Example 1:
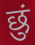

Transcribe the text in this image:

छुं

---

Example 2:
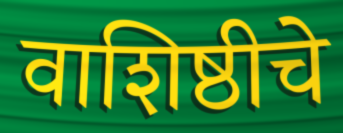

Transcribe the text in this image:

वाशिष्ठीचे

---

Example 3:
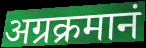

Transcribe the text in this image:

अग्रक्रमानं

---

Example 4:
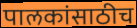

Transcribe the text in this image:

पालकांसाठीच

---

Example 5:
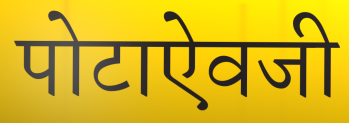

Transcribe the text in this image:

पोटाऐवजी